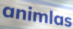
animlas